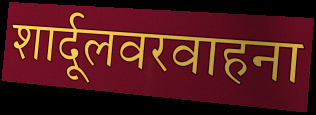
शार्दूलवरवाहना